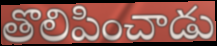
తొలిపించాడు